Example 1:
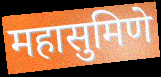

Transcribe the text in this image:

महासुमिणे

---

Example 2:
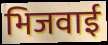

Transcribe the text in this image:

भिजवाई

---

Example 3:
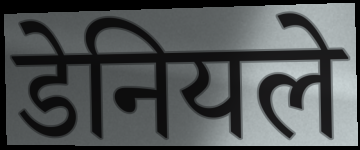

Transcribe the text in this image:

डेनियले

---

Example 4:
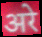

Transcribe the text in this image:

अरे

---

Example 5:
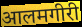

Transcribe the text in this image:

आलमगीरी